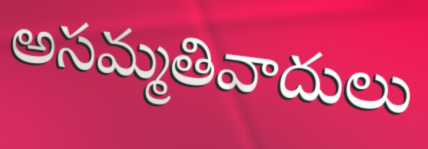
అసమ్మతివాదులు